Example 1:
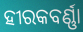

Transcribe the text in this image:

ହୀରକବର୍ଣ୍ଣା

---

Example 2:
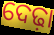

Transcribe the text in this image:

ଦେଢ଼ା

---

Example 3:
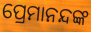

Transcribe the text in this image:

ପ୍ରେମାନନ୍ଦଙ୍କ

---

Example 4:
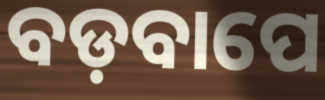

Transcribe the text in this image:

ବଡ଼ବାପେ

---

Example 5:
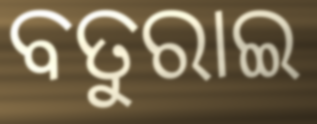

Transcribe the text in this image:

ବତୁରାଇ